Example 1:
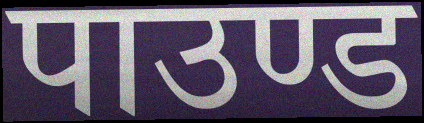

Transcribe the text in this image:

पाउण्‍ड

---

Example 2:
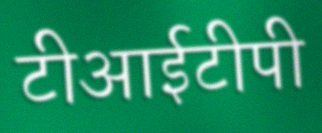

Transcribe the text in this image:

टीआईटीपी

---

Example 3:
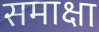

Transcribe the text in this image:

समाक्षा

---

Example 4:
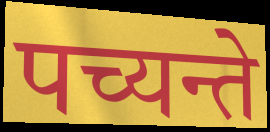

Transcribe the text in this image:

पच्यन्ते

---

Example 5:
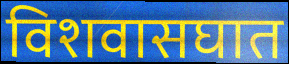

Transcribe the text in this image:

विशवासघात